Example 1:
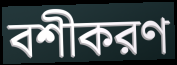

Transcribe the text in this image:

বশীকরণ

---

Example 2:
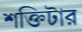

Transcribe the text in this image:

শক্তিটার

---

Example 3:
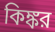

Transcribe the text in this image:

কিঙ্কর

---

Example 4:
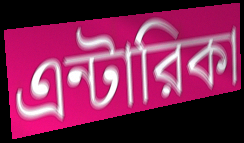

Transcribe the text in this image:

এন্টারিকা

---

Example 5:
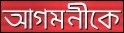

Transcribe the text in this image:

আগমনীকে